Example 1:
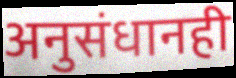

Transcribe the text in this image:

अनुसंधानही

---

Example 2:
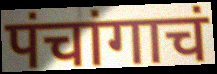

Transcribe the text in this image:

पंचांगाचं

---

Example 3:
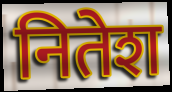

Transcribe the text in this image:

नितेश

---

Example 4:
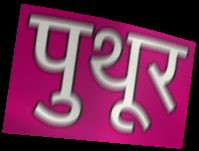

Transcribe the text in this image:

पुथूर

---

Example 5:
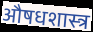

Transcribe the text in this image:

औषधशास्त्र